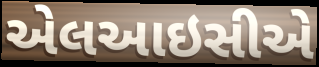
એલઆઇસીએ